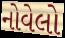
નોવેલો